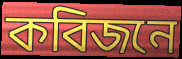
কবিজনে